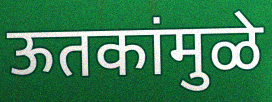
ऊतकांमुळे